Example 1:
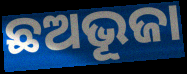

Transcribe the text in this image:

ଛଅଭୂଜା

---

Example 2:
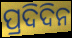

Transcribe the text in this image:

ପ୍ରଦିଦିନ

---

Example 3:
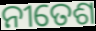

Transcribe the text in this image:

ନୀତେଶ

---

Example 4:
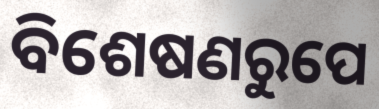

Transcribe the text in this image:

ବିଶେଷଣରୁପେ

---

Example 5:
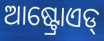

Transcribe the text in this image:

ଆଷ୍ଟ୍ରୋଏଡ୍